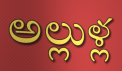
అల్లుళ్ల